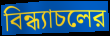
বিন্ধ্যাচলের